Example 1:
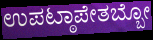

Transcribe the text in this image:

ಉಪಟ್ಠಾಪೇತಬ್ಬೋ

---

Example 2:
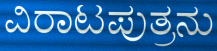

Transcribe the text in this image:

ವಿರಾಟಪುತ್ರನು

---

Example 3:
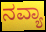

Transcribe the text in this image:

ನವ್ಯಾ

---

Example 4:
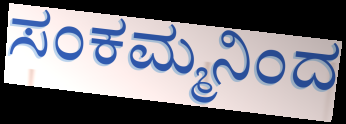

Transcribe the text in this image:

ಸಂಕಮ್ಮನಿಂದ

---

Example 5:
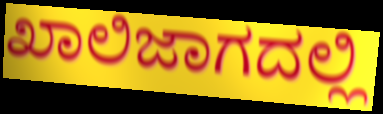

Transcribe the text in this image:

ಖಾಲಿಜಾಗದಲ್ಲಿ